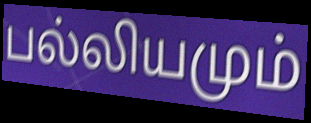
பல்லியமும்